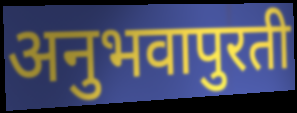
अनुभवापुरती